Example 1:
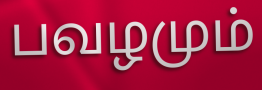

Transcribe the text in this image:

பவழமும்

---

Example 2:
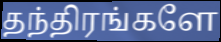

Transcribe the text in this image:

தந்திரங்களே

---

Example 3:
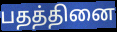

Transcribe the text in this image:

பதத்தினை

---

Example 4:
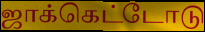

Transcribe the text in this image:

ஜாக்கெட்டோடு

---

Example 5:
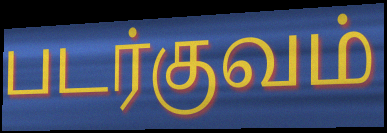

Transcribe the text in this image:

படர்குவம்